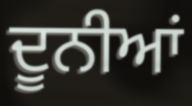
ਦੂਨੀਆਂ